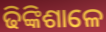
ଢିଙ୍କିଶାଳେ